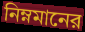
নিম্নমানের